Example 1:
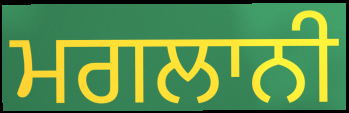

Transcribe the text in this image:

ਮਗਲਾਨੀ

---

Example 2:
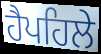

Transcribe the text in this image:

ਹੈਪਹਿਲੇ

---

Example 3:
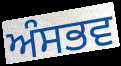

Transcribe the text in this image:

ਅੰਸਭਵ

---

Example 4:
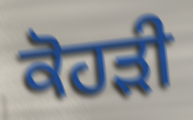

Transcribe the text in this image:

ਕੋਹੜੀ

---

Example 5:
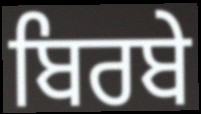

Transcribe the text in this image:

ਬਿਰਬੇ